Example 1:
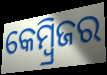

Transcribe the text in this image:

କେମ୍ୱ୍ରିଜର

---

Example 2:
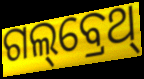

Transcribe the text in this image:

ଗଲ୍‌ବ୍ରେଥ୍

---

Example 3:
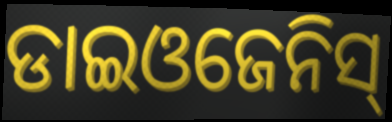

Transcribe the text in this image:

ଡାଇଓଜେନିସ୍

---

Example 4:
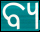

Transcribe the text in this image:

ବ୍ୟ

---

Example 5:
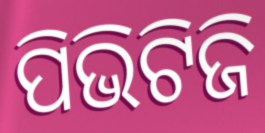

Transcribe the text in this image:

ପିଭିଟିଜି